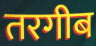
तरगीब